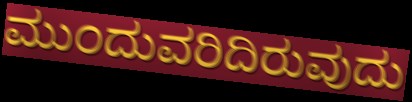
ಮುಂದುವರಿದಿರುವುದು